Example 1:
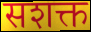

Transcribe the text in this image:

सशक्त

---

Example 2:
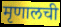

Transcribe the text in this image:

मृणालची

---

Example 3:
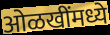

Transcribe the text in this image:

ओळखींमध्ये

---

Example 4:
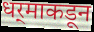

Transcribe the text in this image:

धर्माकडून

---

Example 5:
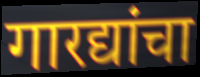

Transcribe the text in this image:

गारद्यांचा